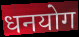
धनयोग